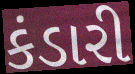
કંડારી